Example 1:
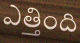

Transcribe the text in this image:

ఎత్తింది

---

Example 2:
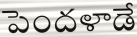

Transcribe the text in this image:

పెందళాడే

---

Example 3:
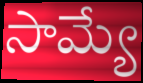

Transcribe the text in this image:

సామ్యే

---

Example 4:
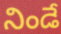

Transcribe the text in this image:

నిండే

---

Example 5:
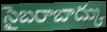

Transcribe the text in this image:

సైబరాబాద్కు